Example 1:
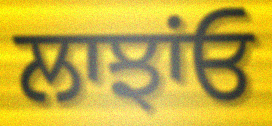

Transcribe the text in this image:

ਲਾਝਾਂਓ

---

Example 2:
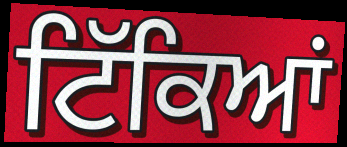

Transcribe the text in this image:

ਟਿੱਕਿਆਂ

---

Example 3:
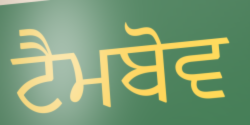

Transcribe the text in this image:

ਟੈਮਬੋਵ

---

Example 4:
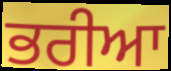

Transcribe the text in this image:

ਭਰੀਆ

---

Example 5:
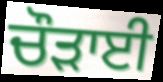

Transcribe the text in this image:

ਚੌੜਾਈ